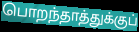
பொறந்தாத்துக்குப்